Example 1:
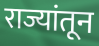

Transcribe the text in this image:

राज्यांतून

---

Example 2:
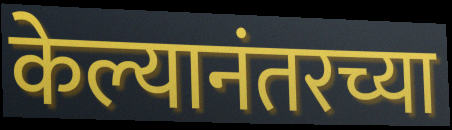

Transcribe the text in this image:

केल्यानंतरच्या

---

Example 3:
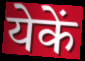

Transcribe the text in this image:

येकें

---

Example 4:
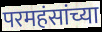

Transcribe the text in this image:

परमहंसांच्या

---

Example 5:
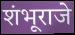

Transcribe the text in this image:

शंभूराजे